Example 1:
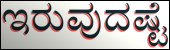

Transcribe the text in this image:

ಇರುವುದಷ್ಟೆ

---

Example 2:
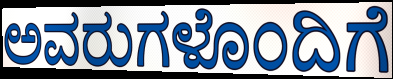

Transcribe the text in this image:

ಅವರುಗಳೊಂದಿಗೆ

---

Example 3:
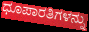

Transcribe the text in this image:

ಧೂಪಾರತಿಗಳನ್ನು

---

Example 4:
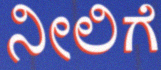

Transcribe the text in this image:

ನೀಲಿಗೆ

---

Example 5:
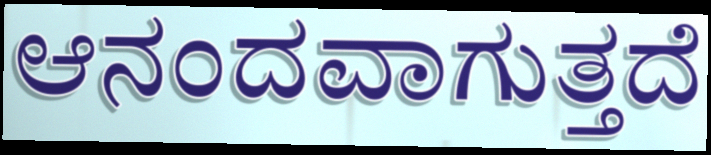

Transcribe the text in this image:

ಆನಂದವಾಗುತ್ತದೆ